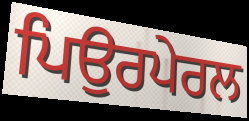
ਪਿਉਰਪੇਰਲ